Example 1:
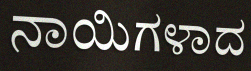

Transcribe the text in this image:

ನಾಯಿಗಳಾದ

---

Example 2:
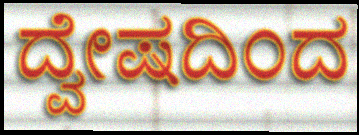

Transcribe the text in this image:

ದ್ವೇಷದಿಂದ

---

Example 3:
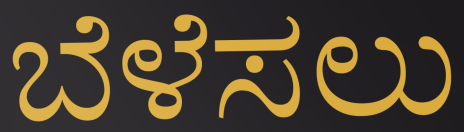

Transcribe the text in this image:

ಬೆಳೆಸಲು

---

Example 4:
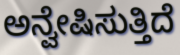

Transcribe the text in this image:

ಅನ್ವೇಷಿಸುತ್ತಿದೆ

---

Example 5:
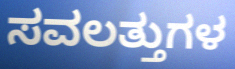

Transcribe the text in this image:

ಸವಲತ್ತುಗಳ